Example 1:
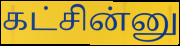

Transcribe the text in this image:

கட்சின்னு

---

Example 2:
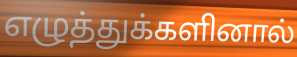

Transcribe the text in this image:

எழுத்துக்களினால்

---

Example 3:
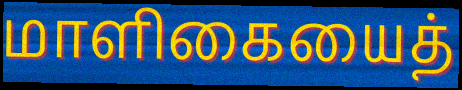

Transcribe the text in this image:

மாளிகையைத்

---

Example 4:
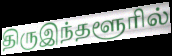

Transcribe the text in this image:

திருஇந்தளூரில்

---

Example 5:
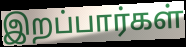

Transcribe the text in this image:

இறப்பார்கள்